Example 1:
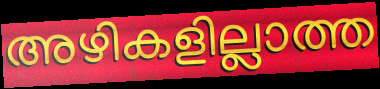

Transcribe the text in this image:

അഴികളില്ലാത്ത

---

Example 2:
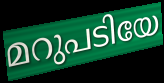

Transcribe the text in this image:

മറുപടിയേ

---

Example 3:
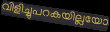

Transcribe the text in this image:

വിളിച്ചുപറകയില്ലയോ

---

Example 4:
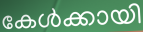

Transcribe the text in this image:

കേൾക്കായി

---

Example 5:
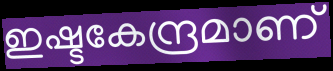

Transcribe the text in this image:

ഇഷ്ടകേന്ദ്രമാണ്